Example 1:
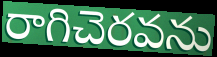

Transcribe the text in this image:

రాగిచెరవను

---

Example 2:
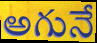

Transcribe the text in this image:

అగునే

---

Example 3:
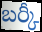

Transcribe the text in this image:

బర్కీ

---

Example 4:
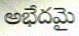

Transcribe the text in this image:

అభేదమై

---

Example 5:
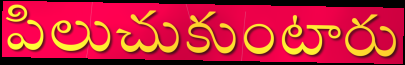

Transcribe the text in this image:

పిలుచుకుంటారు